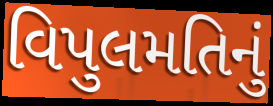
વિપુલમતિનું